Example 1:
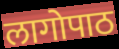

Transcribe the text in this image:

लागोपाठ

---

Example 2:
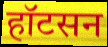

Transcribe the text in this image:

हॉटसन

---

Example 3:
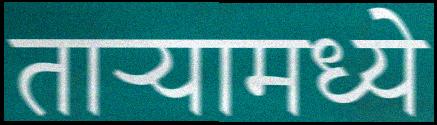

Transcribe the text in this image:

ताऱ्यामध्ये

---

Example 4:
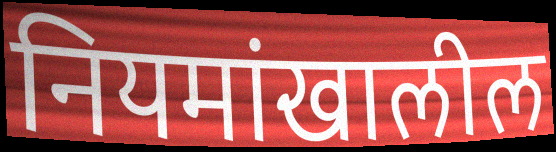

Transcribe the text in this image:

नियमांखालील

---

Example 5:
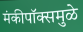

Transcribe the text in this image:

मंकीपॉक्समुळे